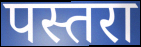
पस्तरा